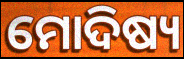
ମୋଦିଷ୍ୟ